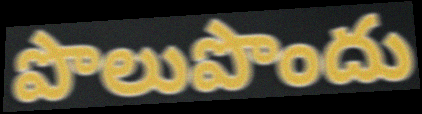
పొలుపొందు